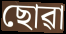
ছোৱা